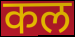
कल